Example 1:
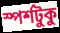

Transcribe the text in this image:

স্পর্শটুকু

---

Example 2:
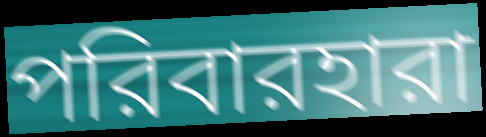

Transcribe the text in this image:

পরিবারহারা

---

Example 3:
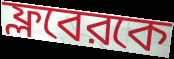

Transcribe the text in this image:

ফ্লবেরকে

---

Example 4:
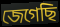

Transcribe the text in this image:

জেগেছি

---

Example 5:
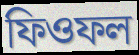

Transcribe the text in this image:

ফিওফল